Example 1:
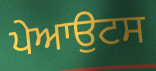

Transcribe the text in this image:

ਪੇਆਉਟਸ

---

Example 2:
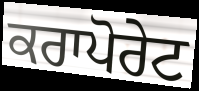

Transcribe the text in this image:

ਕਰਾਪੋਰੇਟ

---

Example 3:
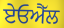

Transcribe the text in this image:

ਏਓਐੱਲ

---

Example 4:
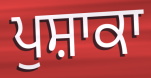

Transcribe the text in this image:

ਪੁਸ਼ਾਕਾ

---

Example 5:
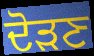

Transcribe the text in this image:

ਦੋੜਣ